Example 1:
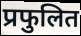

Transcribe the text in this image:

प्रफुलित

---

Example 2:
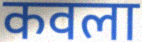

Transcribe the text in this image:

कवला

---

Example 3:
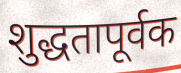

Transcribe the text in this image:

शुद्धतापूर्वक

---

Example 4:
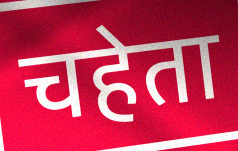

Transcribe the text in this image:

चहेता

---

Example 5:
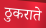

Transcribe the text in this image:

ठुकराते